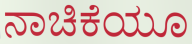
ನಾಚಿಕೆಯೂ